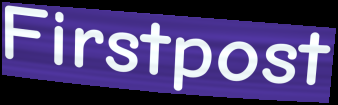
Firstpost